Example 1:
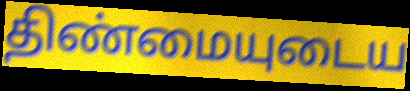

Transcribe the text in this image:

திண்மையுடைய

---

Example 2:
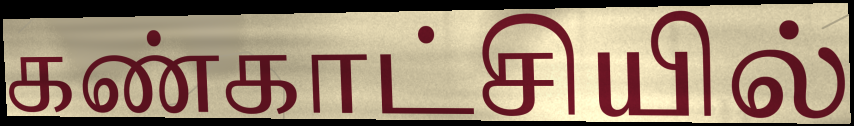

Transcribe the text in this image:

கண்காட்சியில்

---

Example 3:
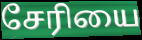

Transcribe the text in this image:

சேரியை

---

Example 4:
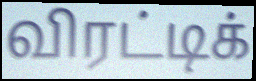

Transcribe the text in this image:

விரட்டிக்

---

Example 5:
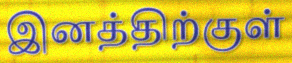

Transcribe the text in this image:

இனத்திற்குள்